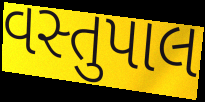
વસ્તુપાલ